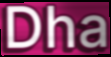
Dha